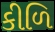
કીળિ